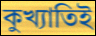
কুখ্যাতিই